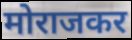
मोराजकर